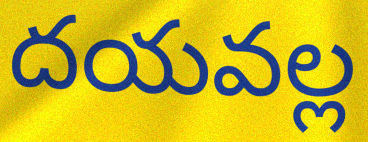
దయవల్ల